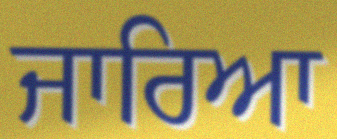
ਜਾਰਿਆ